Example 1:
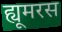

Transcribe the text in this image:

ह्यूमरस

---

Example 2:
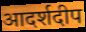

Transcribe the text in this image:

आदर्शदीप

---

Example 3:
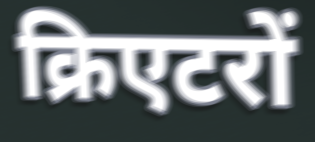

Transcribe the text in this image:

क्रिएटरों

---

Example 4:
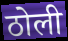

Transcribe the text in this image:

ठोली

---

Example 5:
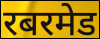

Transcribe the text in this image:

रबरमेड